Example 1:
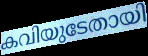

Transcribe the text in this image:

കവിയുടേതായി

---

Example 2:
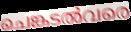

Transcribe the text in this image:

ചെങ്കടൽവരെ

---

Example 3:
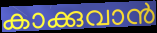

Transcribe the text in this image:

കാക്കുവാൻ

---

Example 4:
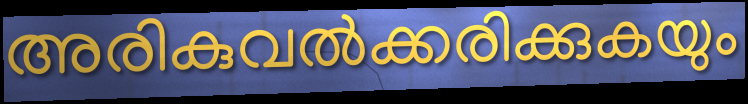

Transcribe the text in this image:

അരികുവൽക്കരിക്കുകയും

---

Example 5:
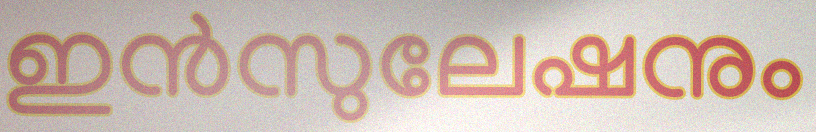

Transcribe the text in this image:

ഇൻസുലേഷനും